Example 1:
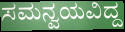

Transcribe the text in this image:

ಸಮನ್ವಯವಿದ್ದ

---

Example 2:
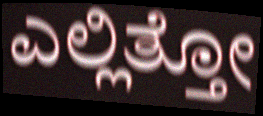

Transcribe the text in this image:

ಎಲ್ಲಿತ್ತೋ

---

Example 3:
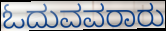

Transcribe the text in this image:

ಓದುವವರಾರು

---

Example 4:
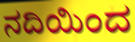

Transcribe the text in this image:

ನದಿಯಿಂದ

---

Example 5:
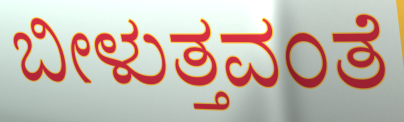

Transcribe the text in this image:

ಬೀಳುತ್ತವಂತೆ